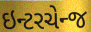
ઇન્ટરચેન્જ